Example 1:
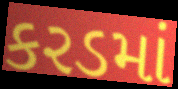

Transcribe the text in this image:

કરડમાં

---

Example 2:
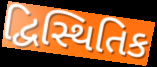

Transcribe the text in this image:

દ્વિસ્થિતિક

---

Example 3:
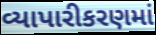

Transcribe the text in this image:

વ્યાપારીકરણમાં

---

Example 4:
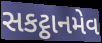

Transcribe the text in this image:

સકટ્ઠાનમેવ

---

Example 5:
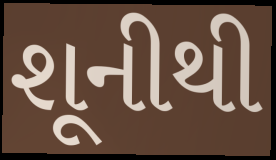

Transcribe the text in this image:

શૂનીથી